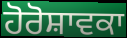
ਹੋਰੋਸ਼ਾਵਕਾ